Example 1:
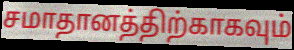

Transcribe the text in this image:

சமாதானத்திற்காகவும்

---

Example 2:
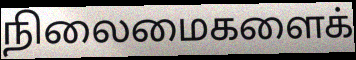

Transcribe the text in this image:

நிலைமைகளைக்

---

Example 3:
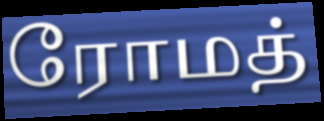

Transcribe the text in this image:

ரோமத்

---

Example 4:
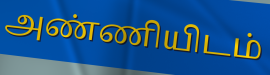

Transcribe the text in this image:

அண்ணியிடம்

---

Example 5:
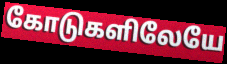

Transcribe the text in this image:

கோடுகளிலேயே